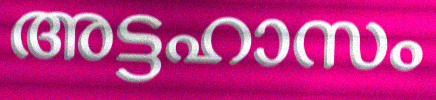
അട്ടഹാസം